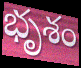
భృశం